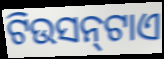
ଟିଉସନ୍‍ଟାଏ